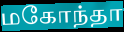
மகோந்தா